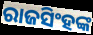
ରାଜସିଂହଙ୍କ